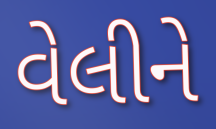
વેલીને